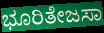
ಭೂರಿತೇಜಸಾ